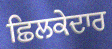
ਛਿਲਕੇਦਾਰ